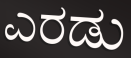
ಎರಡು